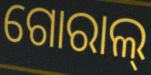
ଗୋରାଲ୍